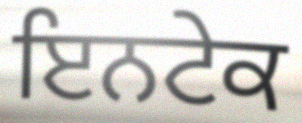
ਇਨਟੇਕ